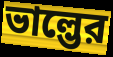
ভাল্ভের